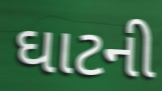
ઘાટની